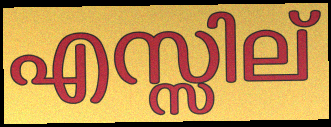
എസ്സില്